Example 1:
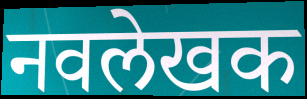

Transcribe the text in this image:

नवलेखक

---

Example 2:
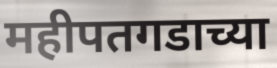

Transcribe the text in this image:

महीपतगडाच्या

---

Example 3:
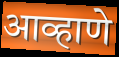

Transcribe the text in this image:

आव्हाणे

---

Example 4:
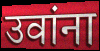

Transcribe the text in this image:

उवांना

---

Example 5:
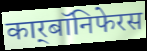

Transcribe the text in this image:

कार्बॉनिफेरस